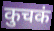
कुचकं